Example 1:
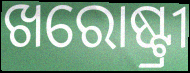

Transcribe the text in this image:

ଖରୋଷ୍ଟ୍ରୀ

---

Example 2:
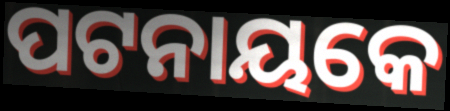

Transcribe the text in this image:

ପଟନାୟକେ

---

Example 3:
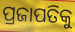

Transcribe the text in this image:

ପ୍ରଜାପତିକୁ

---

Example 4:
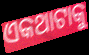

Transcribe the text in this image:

ଏକଥାଟାକୁ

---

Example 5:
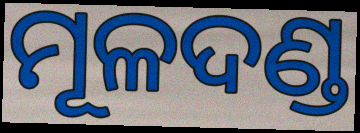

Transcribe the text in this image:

ମୂଳଦଣ୍ଡ